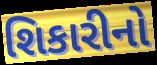
શિકારીનો